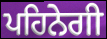
ਪਹਿਨੇਗੀ